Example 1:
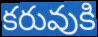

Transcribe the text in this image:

కరువుకి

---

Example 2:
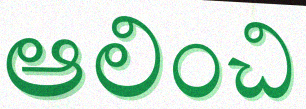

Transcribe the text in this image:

ఆలించి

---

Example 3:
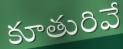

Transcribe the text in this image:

కూతురివే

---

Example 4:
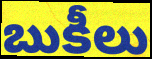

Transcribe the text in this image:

బుకీలు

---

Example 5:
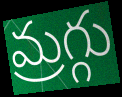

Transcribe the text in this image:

మ్రగ్గు